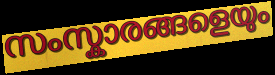
സംസ്കാരങ്ങളെയും